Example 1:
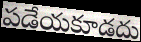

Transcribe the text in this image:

పడేయకూడదు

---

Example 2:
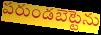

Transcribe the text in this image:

పరుండబెట్టెను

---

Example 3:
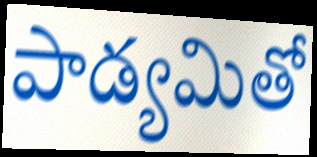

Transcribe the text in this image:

పాడ్యమితో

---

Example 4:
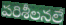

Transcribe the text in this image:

పరిశీలనలే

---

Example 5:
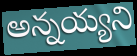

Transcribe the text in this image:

అన్నయ్యని